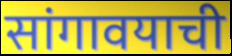
सांगावयाची